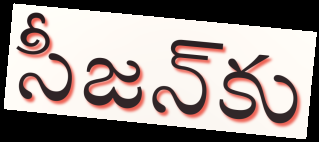
సీజన్‌కు